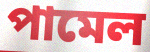
পামেল